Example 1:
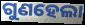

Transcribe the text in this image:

ଗୁଣହେଲା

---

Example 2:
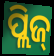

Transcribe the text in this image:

ପ୍ଲିଜ୍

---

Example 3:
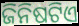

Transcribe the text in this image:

ଜିନିଷଟିଏ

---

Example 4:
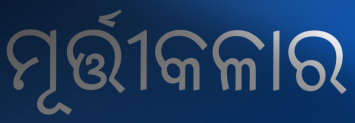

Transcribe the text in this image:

ମୂର୍ତ୍ତୀକଳାର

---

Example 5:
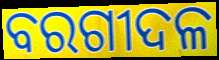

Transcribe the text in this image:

ବରଗୀଦଳ